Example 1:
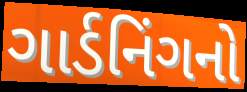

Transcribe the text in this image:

ગાર્ડનિંગનો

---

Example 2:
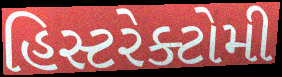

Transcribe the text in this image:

હિસ્ટરેક્ટોમી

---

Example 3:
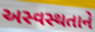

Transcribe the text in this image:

અસ્વસ્થતાને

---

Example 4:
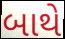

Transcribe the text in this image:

બાથે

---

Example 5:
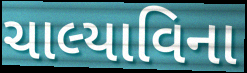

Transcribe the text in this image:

ચાલ્યાવિના